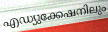
എഡ്യുക്കേഷനിലും